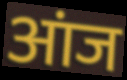
आंज